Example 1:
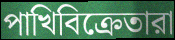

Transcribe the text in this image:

পাখিবিক্রেতারা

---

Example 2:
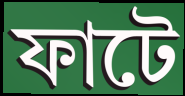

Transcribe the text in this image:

ফাটে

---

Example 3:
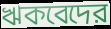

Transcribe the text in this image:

ঋকবেদের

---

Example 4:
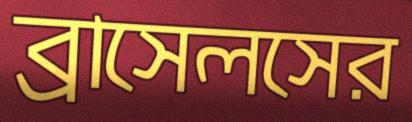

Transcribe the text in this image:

ব্রাসেলসের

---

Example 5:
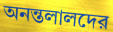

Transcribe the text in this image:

অনন্তলালদের